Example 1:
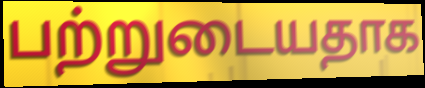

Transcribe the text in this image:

பற்றுடையதாக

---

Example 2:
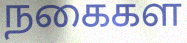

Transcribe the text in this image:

நகைகள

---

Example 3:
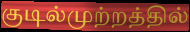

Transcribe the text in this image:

குடில்முற்றத்தில்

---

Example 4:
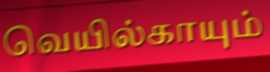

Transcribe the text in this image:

வெயில்காயும்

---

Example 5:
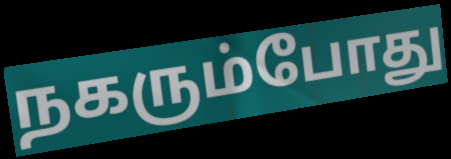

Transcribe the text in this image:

நகரும்போது